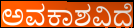
ಅವಕಾಶವಿದೆ